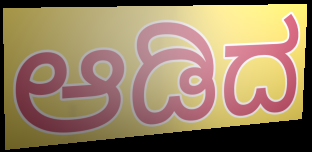
ಆಡಿದ